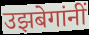
उझबेगांनीं